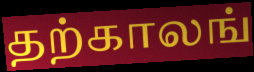
தற்காலங்